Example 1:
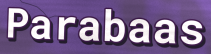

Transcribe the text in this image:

Parabaas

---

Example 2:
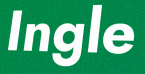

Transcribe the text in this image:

Ingle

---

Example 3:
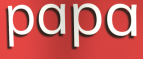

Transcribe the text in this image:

papa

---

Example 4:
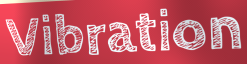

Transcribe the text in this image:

Vibration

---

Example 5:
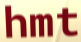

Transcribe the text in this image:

hmt